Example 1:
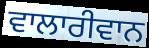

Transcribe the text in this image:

ਵਾਲਾਰੀਵਾਨ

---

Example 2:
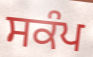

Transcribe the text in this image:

ਸਕੰਪ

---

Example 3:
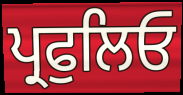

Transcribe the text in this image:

ਪ੍ਰਫੁਲਿਓ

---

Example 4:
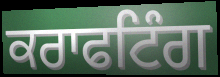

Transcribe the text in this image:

ਕਰਾਫਟਿੰਗ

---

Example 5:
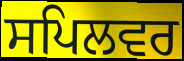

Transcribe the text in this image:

ਸਪਿਲਵਰ